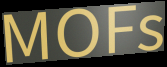
MOFs